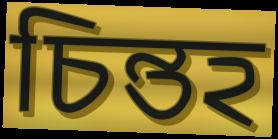
চিন্তহ